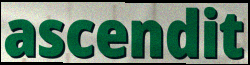
ascendit